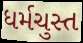
ધર્મચુસ્ત